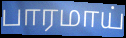
பாரமாய்